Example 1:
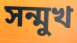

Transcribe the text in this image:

সন্মুখ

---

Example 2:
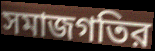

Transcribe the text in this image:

সমাজগতির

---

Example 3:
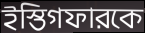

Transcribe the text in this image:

ইস্তিগফারকে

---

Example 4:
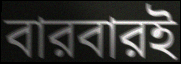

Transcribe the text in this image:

বারবারই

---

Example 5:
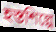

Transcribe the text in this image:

হস্তশিল্পে